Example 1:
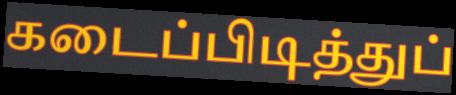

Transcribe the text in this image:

கடைப்பிடித்துப்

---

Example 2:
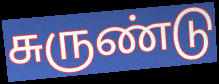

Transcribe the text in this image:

சுருண்டு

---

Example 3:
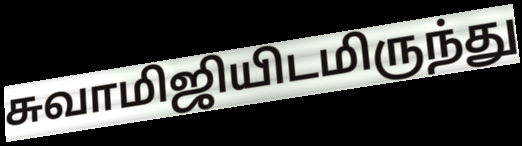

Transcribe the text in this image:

சுவாமிஜியிடமிருந்து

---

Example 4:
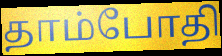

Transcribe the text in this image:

தாம்போதி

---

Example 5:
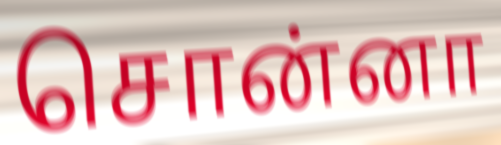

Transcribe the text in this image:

சொன்னா